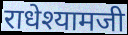
राधेश्यामजी